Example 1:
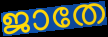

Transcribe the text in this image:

ജാതേ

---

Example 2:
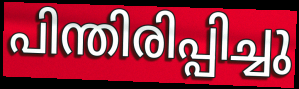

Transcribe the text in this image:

പിന്തിരിപ്പിച്ചു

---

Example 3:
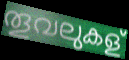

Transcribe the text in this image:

തൂവലുകള്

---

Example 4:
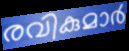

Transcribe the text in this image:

രവികുമാർ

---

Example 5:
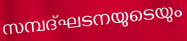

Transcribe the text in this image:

സമ്പദ്ഘടനയുടെയും